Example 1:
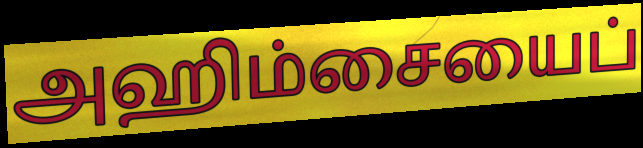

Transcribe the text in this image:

அஹிம்சையைப்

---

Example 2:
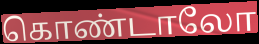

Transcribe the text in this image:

கொண்டாலோ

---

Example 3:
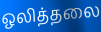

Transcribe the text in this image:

ஒலித்தலை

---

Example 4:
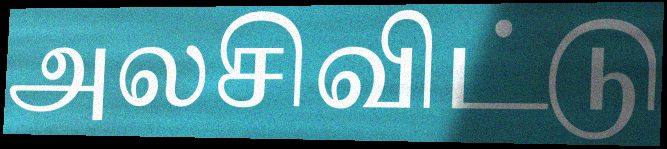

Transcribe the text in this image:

அலசிவிட்டு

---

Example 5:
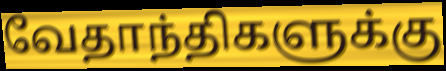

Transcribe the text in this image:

வேதாந்திகளுக்கு